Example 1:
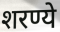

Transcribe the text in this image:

शरण्ये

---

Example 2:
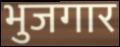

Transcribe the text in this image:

भुजगार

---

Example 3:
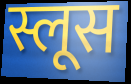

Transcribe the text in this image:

स्लूस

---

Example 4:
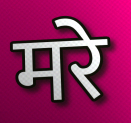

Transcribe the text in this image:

मरे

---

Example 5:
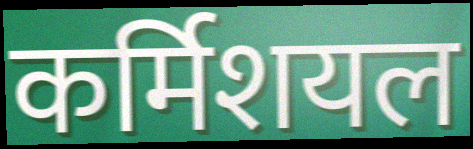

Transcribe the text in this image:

कर्मिशयल